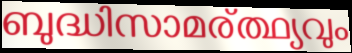
ബുദ്ധിസാമര്ത്ഥ്യവും